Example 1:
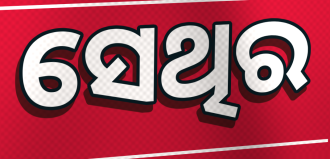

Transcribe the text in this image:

ସେଥିର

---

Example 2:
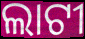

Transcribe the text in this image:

ଲାଟୀ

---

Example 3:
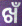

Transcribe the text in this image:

ଖଁ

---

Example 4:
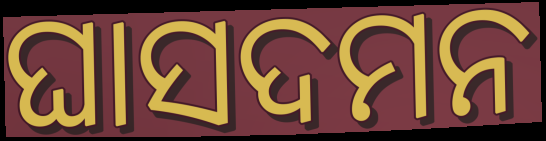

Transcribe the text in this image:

ଘାସଦମନ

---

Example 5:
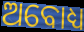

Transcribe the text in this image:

ଅବୋଧ୍ୟ